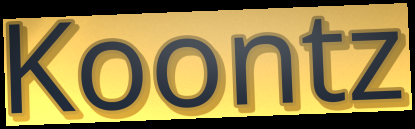
Koontz